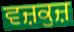
ਵਜ਼ਕੁਜ਼